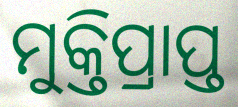
ମୁକ୍ତିପ୍ରାପ୍ତ